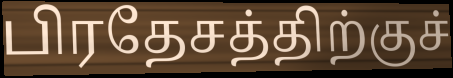
பிரதேசத்திற்குச்